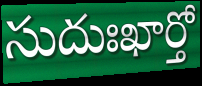
సుదుఃఖార్తో